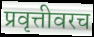
प्रवृत्तीवरच